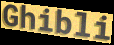
Ghibli